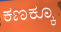
ಕಣಕ್ಕೂ